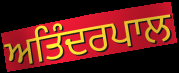
ਅਤਿੰਦਰਪਾਲ